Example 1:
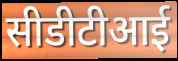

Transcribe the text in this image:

सीडीटीआई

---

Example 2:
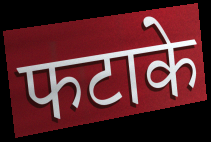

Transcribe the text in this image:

फटाके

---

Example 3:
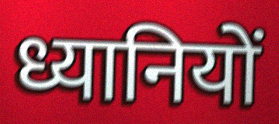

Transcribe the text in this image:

ध्यानियों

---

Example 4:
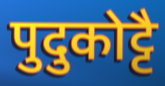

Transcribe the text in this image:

पुदुकोट्टै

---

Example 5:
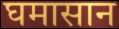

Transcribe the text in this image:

घमासान